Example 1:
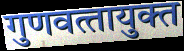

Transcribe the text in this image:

गुणवत्‍तायुक्‍त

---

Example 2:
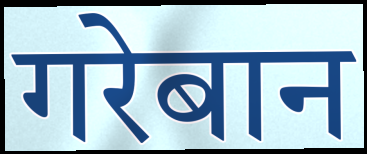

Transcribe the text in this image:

गरेबान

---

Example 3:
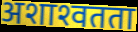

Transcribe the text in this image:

अशाश्वतता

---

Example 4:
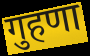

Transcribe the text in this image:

गुहणा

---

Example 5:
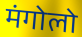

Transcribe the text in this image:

मंगोलो